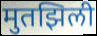
मुतझिली